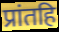
प्रांतहि